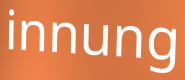
innung